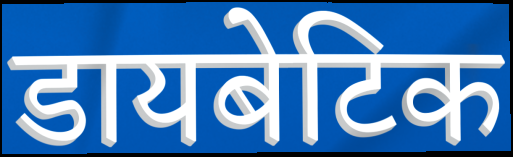
डायबेटिक